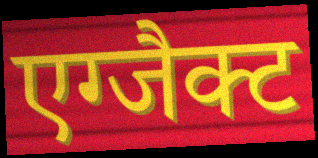
एग्जैक्ट